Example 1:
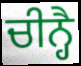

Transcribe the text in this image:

ਚੀਨ੍ਹ੍ਹੈ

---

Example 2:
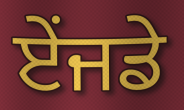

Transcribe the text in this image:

ਏਂਜਡੇ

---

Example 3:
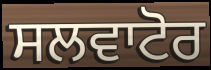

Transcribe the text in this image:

ਸਲਵਾਟੋਰ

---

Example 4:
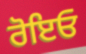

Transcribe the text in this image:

ਰੋਇਓ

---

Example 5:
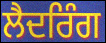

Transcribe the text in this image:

ਲੈਦਰਿੰਗ